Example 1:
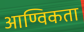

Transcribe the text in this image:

आण्विकता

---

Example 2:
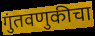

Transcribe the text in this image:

गुंतवणुकीचा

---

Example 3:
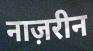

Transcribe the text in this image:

नाज़रीन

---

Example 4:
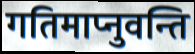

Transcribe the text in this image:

गतिमाप्नुवन्ति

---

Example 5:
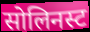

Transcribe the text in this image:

सोलिनस्ट